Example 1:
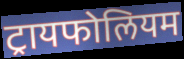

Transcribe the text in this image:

ट्रायफोलियम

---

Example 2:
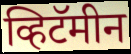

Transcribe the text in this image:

व्हिटॅमीन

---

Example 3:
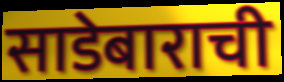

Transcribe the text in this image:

साडेबाराची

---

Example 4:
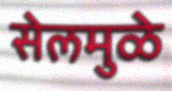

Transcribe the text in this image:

सेलमुळे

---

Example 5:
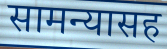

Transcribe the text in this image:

सामन्यासह